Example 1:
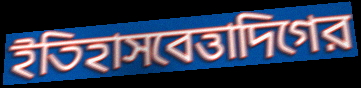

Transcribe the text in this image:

ইতিহাসবেত্তাদিগের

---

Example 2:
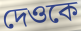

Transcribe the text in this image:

দেওকে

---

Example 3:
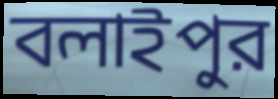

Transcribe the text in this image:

বলাইপুর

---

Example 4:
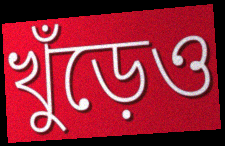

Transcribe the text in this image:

খুঁড়েও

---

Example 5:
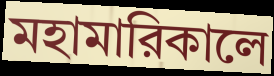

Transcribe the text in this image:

মহামারিকালে